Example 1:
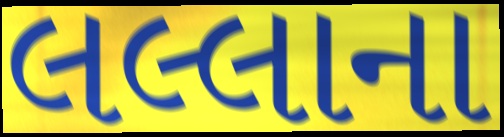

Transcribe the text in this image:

લલ્લાના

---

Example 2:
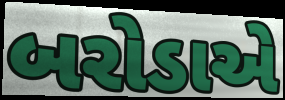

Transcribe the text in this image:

બરોડાએ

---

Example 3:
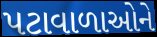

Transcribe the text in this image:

પટાવાળાઓને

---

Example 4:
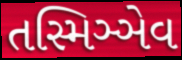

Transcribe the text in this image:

તસ્મિઞ્ઞેવ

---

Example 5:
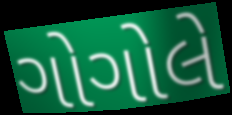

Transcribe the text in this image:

ગોગોલે